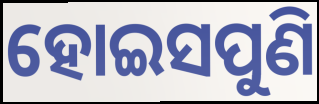
ହୋଇସପୁଣି